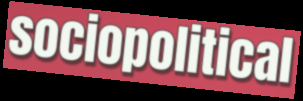
sociopolitical